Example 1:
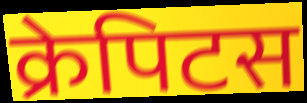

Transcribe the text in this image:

क्रेपिटस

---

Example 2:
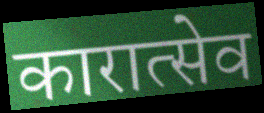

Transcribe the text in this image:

कारात्सेव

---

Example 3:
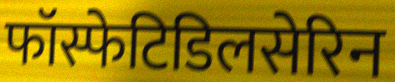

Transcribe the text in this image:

फॉस्फेटिडिलसेरिन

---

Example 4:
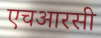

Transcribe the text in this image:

एचआरसी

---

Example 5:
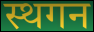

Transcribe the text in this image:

स्थगन